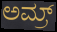
ಅಮ್ರ್